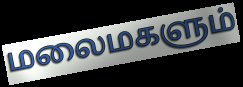
மலைமகளும்